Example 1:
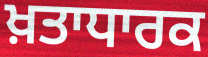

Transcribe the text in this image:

ਖ਼ਤਾਧਾਰਕ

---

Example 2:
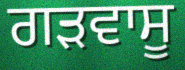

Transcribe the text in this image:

ਗੜਵਾਸੂ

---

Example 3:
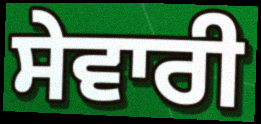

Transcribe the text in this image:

ਸੇਵਾਰੀ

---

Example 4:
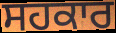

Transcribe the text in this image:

ਸਹਕਾਰ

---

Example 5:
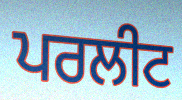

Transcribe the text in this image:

ਪਰਲੀਟ